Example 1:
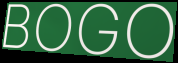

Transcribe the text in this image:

BOGO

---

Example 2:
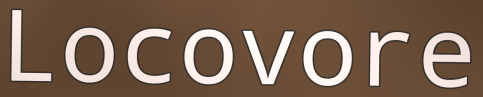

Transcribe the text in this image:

Locovore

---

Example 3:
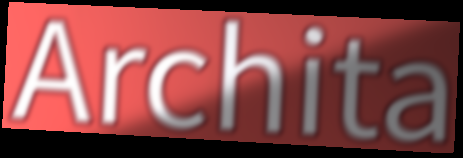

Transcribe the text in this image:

Archita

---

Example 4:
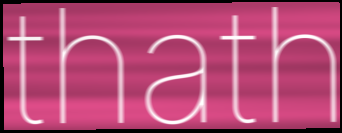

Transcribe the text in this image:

thath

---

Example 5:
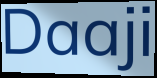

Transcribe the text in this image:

Daaji